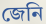
জেনি